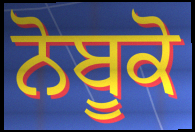
ਨੋਬੂਕੋ